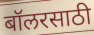
बॉलरसाठी